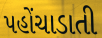
પહોંચાડાતી